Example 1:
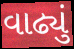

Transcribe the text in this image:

વાઢ્યું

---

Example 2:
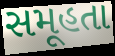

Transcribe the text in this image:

સમૂહતા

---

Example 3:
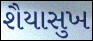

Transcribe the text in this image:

શૈયાસુખ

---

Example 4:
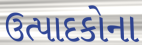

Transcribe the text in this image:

ઉત્પાદકોના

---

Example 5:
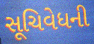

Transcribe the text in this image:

સૂચિવેધની